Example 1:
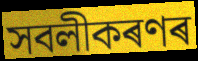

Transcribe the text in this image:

সবলীকৰণৰ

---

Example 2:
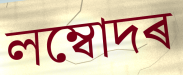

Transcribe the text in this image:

লম্বোদৰ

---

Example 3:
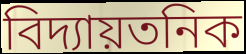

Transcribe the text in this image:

বিদ্যায়তনিক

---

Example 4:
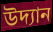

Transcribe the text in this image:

উদ্যান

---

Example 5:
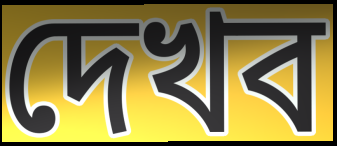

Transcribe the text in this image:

দেখব